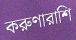
করুণারাশি